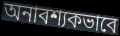
অনাবশ্যকভাবে